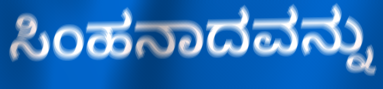
ಸಿಂಹನಾದವನ್ನು